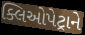
ક્લિઓપેટ્રાને